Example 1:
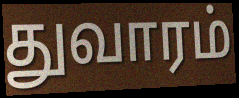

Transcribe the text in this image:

துவாரம்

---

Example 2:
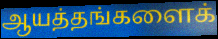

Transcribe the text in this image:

ஆயத்தங்களைக்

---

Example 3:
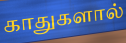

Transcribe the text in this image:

காதுகளால்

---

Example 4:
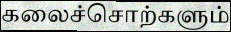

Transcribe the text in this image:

கலைச்சொற்களும்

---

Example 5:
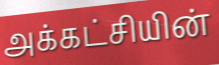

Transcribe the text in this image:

அக்கட்சியின்